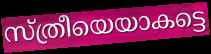
സ്ത്രീയെയാകട്ടെ